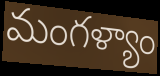
మంగళ్యాం